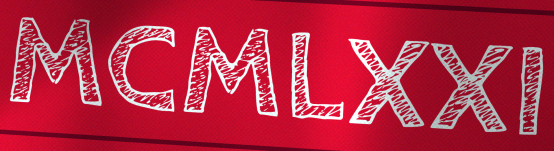
MCMLXXI